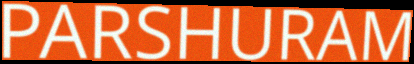
PARSHURAM